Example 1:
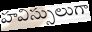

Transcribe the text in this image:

హవిస్సులుగా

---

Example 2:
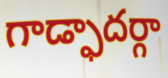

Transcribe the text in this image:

గాడ్ఫాదర్గా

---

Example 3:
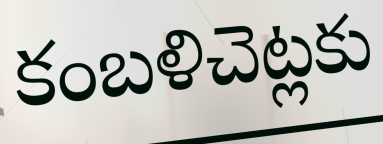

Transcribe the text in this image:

కంబళిచెట్లకు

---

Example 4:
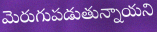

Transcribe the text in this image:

మెరుగుపడుతున్నాయని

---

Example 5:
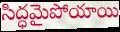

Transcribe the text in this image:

సిద్ధమైపోయాయి